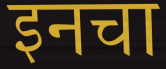
इनचा